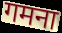
गमना